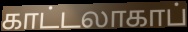
காட்டலாகாப்